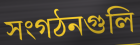
সংগঠনগুলি